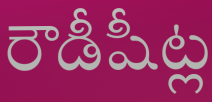
రౌడీషీట్ల